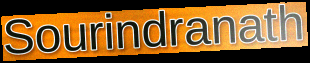
Sourindranath